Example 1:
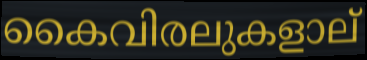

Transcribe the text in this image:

കൈവിരലുകളാല്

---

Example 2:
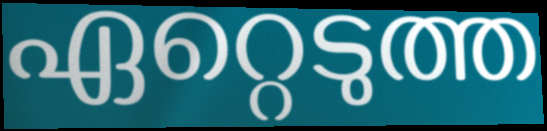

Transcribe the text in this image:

ഏറ്റെടുത്ത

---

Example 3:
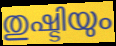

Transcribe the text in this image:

തുഷ്ടിയും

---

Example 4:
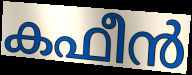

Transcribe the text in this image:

കഫീൻ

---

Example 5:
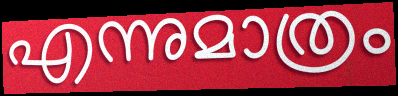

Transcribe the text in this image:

എന്നുമാത്രം